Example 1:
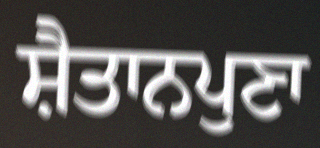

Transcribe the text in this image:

ਸ਼ੈਤਾਨਪੁਣਾ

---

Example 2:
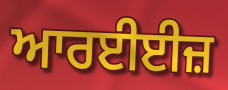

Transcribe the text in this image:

ਆਰਈਈਜ਼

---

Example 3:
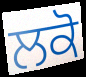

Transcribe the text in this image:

ਲਕੋ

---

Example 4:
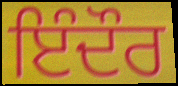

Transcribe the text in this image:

ਇੰਦੌਰ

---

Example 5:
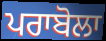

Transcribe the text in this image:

ਪਰਾਬੋਲਾ